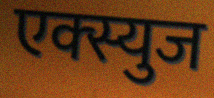
एक्स्युज